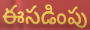
ఈసడింపు